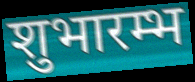
शुभारम्‍भ